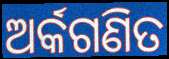
ଅର୍କଗଣିତ